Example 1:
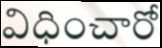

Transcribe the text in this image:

విధించారో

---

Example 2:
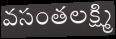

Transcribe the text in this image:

వసంతలక్ష్మి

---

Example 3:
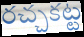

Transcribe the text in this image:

రచ్చకట్ట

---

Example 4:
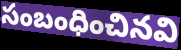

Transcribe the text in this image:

సంబంధించినవి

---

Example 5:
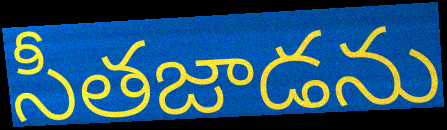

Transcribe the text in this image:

సీతజాడను